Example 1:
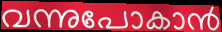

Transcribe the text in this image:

വന്നുപോകാൻ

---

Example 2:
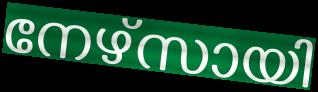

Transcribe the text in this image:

നേഴ്സായി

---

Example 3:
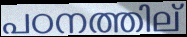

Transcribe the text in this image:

പഠനത്തില്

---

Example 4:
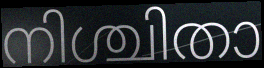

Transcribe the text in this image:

നിശ്ചിതാ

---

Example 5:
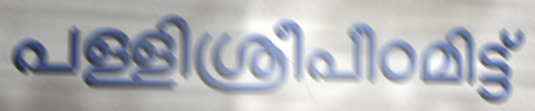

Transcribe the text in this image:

പള്ളിശ്രീപീഠമിട്ട്